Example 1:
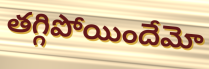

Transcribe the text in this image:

తగ్గిపోయిందేమో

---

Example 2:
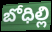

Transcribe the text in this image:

బోధిల్లి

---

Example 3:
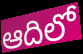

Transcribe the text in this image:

ఆదిలో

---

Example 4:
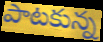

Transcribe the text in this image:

పాటకున్న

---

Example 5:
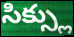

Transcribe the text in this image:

సిక్స్లు